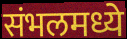
संभलमध्ये